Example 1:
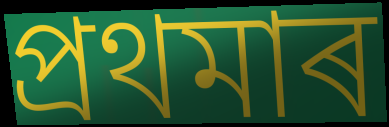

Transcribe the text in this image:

প্ৰথমাৰ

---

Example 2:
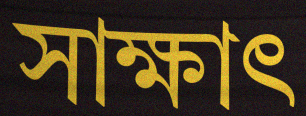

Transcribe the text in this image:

সাক্ষাৎ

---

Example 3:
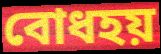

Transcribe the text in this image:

বোধহয়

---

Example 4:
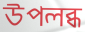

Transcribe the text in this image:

উপলব্ধ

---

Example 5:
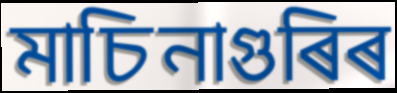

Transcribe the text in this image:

মাচিনাগুৰিৰ